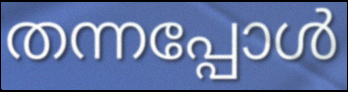
തന്നപ്പോൾ